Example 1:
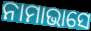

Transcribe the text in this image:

ନାମାଭାସେ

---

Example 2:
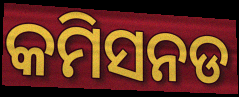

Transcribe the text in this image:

କମିସନଡ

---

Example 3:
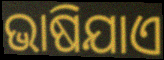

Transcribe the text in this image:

ଭାଷିଯାଏ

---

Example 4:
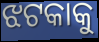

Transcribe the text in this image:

ଝଟକାକୁ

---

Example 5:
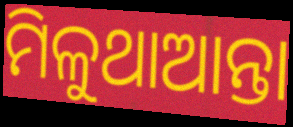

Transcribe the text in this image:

ମିଳୁଥାଆନ୍ତା